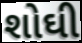
શોઘી